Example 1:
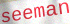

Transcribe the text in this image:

seeman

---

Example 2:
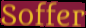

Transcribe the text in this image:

Soffer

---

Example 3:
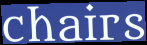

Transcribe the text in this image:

chairs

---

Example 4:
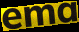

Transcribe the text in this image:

ema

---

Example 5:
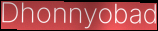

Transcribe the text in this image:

Dhonnyobad